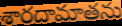
శారదామాతను